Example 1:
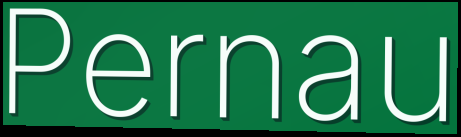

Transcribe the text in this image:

Pernau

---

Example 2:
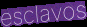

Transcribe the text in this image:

esclavos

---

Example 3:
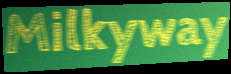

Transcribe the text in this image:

Milkyway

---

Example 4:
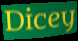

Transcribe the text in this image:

Dicey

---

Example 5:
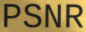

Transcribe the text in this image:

PSNR